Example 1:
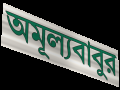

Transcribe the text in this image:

অমূল্যবাবুর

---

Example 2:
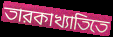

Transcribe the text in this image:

তারকাখ্যাতিতে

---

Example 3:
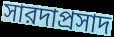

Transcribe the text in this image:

সারদাপ্রসাদ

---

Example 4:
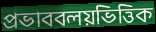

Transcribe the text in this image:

প্রভাববলয়ভিত্তিক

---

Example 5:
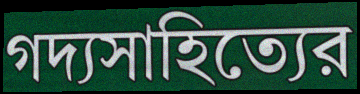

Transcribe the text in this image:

গদ্যসাহিত্যের